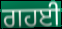
ਗਹਈ